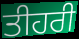
ਤੀਹਰੀ